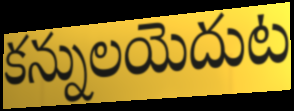
కన్నులయెదుట